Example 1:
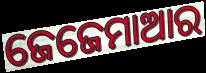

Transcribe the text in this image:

ଜେଜେମାଆର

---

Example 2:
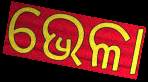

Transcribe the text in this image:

ଭେଳା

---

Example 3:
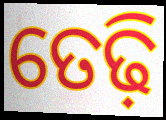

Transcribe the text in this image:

ତେଢ଼ି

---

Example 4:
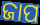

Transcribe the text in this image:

ଜାପ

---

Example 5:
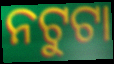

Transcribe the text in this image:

ନଟୁଟା